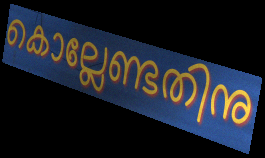
കൊല്ലേണ്ടതിനു